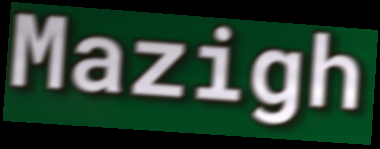
Mazigh